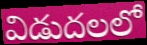
విడుదలలో